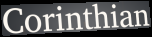
Corinthian